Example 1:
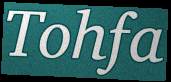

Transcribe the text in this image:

Tohfa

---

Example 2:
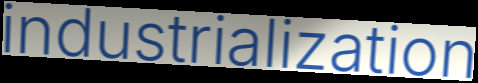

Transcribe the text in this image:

industrialization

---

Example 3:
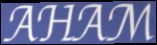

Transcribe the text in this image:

AHAM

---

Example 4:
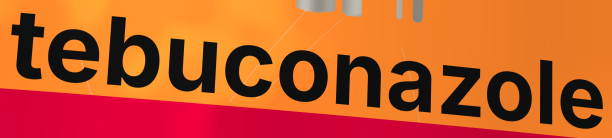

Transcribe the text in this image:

tebuconazole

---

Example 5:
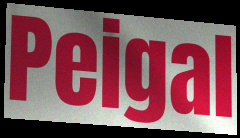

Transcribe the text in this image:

Peigal